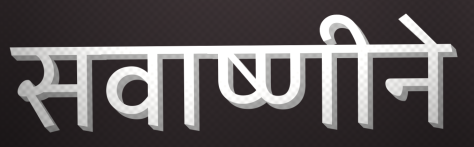
सवाष्णीने